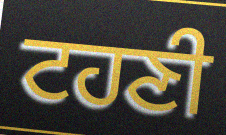
ਟਹਣੀ